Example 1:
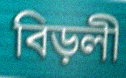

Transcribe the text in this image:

বিড়লী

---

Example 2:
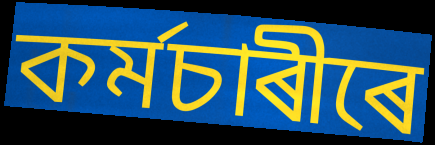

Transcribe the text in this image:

কৰ্মচাৰীৰে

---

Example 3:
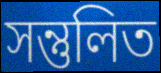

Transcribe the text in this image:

সন্তুলিত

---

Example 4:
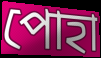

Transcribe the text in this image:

পোহা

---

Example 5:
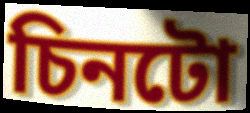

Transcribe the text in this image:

চিনটো